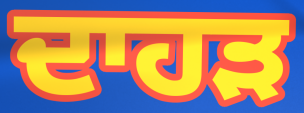
ਦਾਹੜ